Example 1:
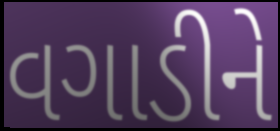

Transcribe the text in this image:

વગાડીને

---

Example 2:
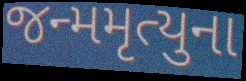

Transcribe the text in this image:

જન્મમૃત્યુના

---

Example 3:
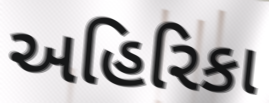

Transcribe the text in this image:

અહિરિકા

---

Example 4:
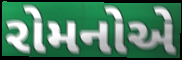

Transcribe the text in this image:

રોમનોએ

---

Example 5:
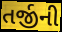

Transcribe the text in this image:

તર્જીની